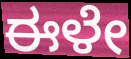
ಈಳೇ